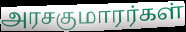
அரசகுமாரர்கள்